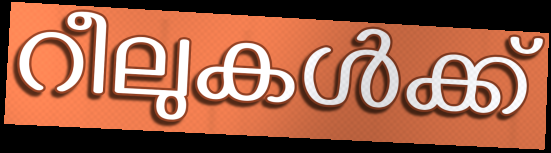
റീലുകൾക്ക്